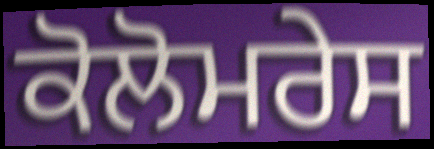
ਕੋਲੋਮਰੇਸ